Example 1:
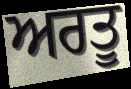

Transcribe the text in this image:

ਅਰਤੂ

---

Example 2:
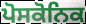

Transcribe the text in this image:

ਪੋਸਕੋਨਿਕ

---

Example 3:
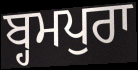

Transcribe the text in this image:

ਬ੍ਹਮਪੁਰਾ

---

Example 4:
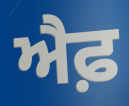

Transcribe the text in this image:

ਐਫ਼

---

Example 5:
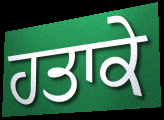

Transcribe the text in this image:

ਹਤਾਕੇ